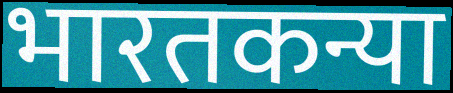
भारतकन्या